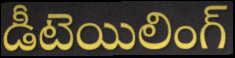
డీటెయిలింగ్